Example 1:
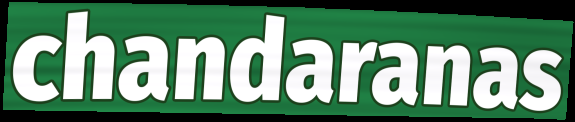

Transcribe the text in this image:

chandaranas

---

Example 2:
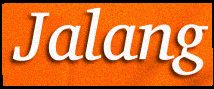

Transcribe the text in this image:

Jalang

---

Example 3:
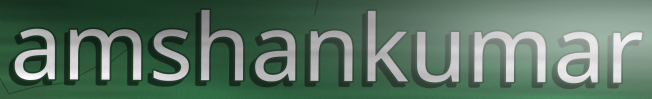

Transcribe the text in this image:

amshankumar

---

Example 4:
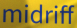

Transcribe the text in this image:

midriff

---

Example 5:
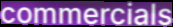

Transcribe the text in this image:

commercials